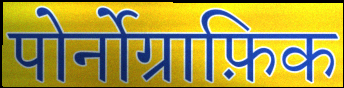
पोर्नोग्राफ़िक